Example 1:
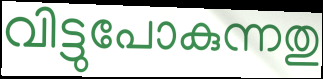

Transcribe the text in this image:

വിട്ടുപോകുന്നതു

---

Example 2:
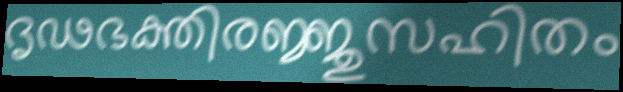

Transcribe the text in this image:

ദൃഢഭക്തിരജ്ജുസഹിതം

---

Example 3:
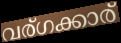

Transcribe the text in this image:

വര്ഗക്കാര്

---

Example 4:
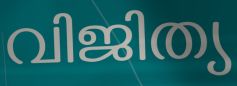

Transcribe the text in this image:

വിജിത്യ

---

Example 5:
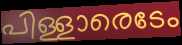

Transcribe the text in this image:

പിള്ളാരെടേം